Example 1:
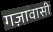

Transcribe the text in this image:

गज़ावासी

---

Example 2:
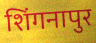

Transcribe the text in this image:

शिंगनापुर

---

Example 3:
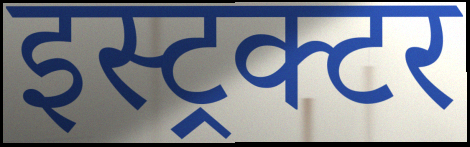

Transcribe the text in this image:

इस्ट्रक्टर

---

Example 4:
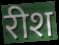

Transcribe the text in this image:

रीश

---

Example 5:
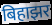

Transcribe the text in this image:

बिहाझर